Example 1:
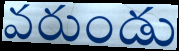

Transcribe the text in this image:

వరుండు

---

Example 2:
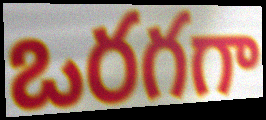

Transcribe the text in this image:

ఒరగగా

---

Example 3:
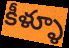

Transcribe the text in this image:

కీళ్ళూ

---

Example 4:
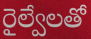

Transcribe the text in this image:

రైల్వేలతో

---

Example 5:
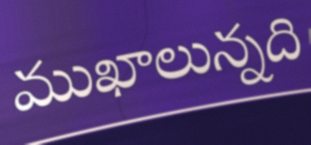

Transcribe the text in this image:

ముఖాలున్నది